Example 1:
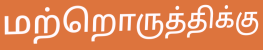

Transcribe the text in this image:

மற்றொருத்திக்கு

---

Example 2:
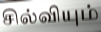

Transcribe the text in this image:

சில்வியும்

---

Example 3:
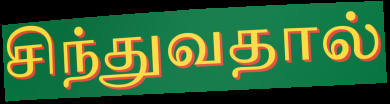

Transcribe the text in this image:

சிந்துவதால்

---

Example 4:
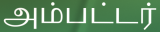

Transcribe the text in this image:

அம்பட்டர்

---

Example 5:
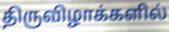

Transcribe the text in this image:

திருவிழாக்களில்